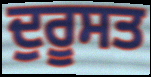
ਦੁਰੂਸਤ